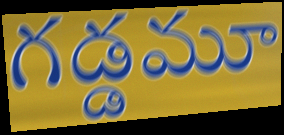
గడ్డమూ